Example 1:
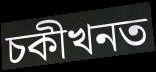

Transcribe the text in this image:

চকীখনত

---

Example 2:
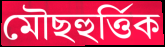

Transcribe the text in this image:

মৌছহুৰ্ত্তিক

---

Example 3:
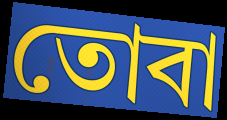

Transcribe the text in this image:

তোবা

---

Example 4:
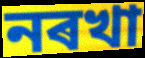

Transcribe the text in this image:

নৰখা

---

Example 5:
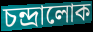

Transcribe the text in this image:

চন্দ্ৰালোক